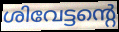
ശിവേട്ടന്റെ